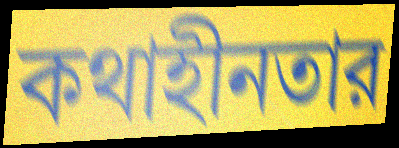
কথাহীনতার